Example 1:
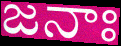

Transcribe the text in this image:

జనాః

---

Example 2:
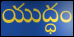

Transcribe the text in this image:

యుద్ధం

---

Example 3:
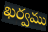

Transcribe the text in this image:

ఖర్వము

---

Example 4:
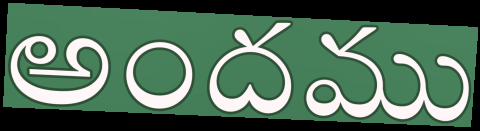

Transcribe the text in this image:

అందము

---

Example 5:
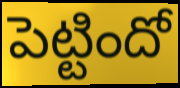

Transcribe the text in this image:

పెట్టిందో